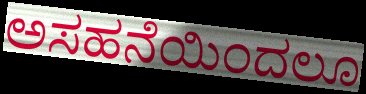
ಅಸಹನೆಯಿಂದಲೂ